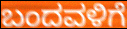
ಬಂದವಳಿಗೆ